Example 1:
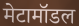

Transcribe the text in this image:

मेटामॉडल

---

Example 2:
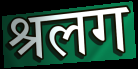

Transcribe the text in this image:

श्रलग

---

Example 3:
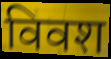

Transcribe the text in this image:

विवश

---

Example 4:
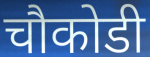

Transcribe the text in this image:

चौकोडी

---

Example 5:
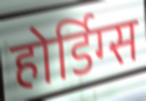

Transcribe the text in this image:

होर्डिग्स